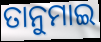
ତାନୁମାଇ